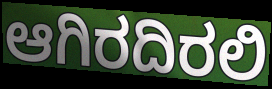
ಆಗಿರದಿರಲಿ